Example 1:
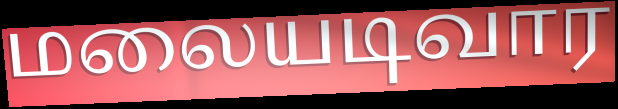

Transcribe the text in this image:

மலையடிவார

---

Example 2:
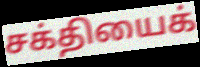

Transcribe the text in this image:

சக்தியைக்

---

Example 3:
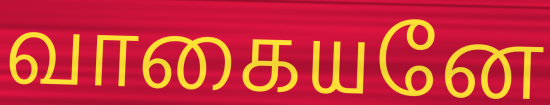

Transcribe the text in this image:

வாகையனே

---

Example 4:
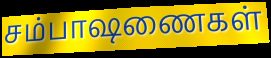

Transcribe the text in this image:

சம்பாஷணைகள்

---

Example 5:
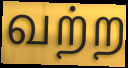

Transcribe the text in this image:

வற்ற